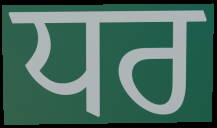
ਧਰ